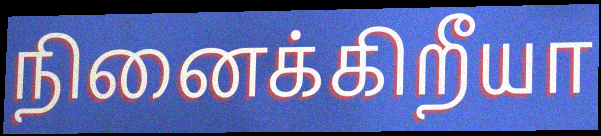
நினைக்கிறீயா